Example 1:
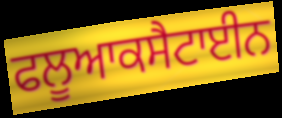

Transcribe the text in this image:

ਫਲੂਆਕਸੈਟਾਈਨ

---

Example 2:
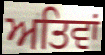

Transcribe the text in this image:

ਅਤਿਵਾਂ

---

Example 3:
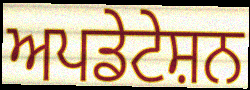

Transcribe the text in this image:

ਅਪਡੇਟੇਸ਼ਨ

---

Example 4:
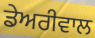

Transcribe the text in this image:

ਡੇਅਰੀਵਾਲ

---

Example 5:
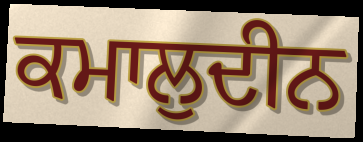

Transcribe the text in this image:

ਕਮਾਲੁਦੀਨ